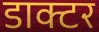
डाक्टर